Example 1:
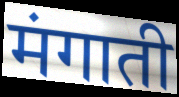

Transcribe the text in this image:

मंगाती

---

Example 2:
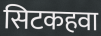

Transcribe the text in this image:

सिटकहवा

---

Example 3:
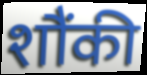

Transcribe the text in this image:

शौंकी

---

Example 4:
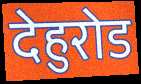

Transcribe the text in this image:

देहुरोड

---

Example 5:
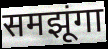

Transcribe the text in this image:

समझूंगा